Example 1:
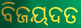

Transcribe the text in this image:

ବିଜୟଦତ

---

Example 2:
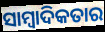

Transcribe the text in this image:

ସାମ୍ୱାଦିକତାର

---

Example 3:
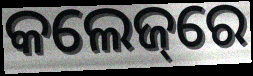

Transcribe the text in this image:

କଲେଜ୍‌ରେ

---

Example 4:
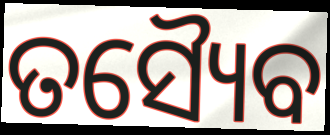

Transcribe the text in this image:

ତସ୍ୟୈବ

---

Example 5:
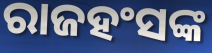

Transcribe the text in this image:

ରାଜହଂସଙ୍କ